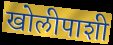
खोलीपाशी